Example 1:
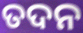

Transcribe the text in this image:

ତଦନ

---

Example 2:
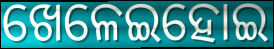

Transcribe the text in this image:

ଖେଳେଇହୋଇ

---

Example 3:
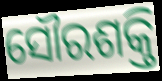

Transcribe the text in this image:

ସୌରଶକ୍ତି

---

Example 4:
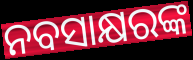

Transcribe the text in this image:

ନବସାକ୍ଷରଙ୍କ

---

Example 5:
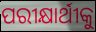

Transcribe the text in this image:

ପରୀକ୍ଷାର୍ଥୀକୁ